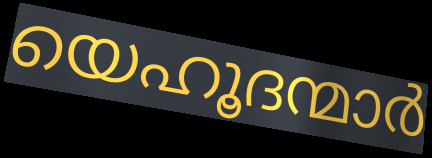
യെഹൂദന്മാർ